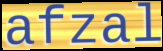
afzal